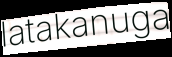
latakanuga